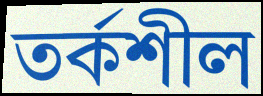
তর্কশীল